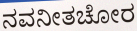
ನವನೀತಚೋರ